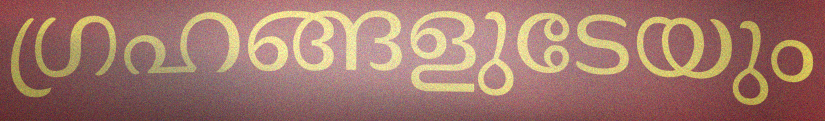
ഗ്രഹങ്ങളുടേയും